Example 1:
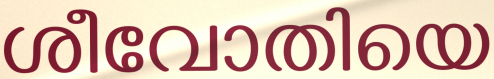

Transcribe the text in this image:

ശീവോതിയെ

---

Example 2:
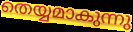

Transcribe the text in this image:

തെയ്യമാകുന്നു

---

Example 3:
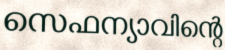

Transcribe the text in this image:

സെഫന്യാവിന്റെ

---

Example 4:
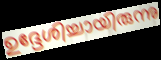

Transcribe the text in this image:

ഉദ്ദേശിച്ചായിരുന്നു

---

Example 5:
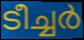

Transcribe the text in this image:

ടീച്ചർ